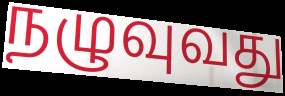
நழுவுவது